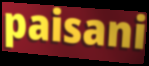
paisani